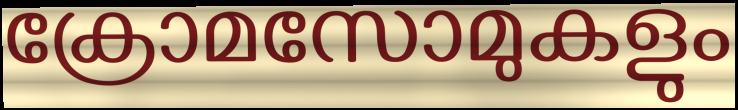
ക്രോമസോമുകളും